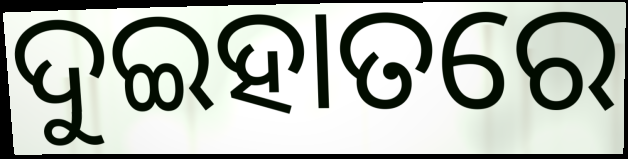
ଦୁଇହାତରେ